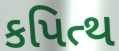
કપિત્થ